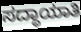
ಸದ್ಧಾಯಾತಿ